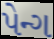
પેન્ગ